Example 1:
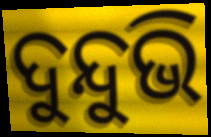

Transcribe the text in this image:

ଦୁନ୍ଦୁଭି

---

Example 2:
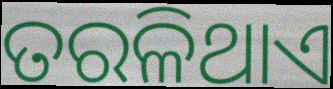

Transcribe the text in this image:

ତରଳିଥାଏ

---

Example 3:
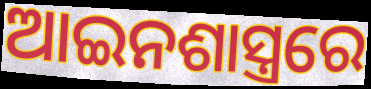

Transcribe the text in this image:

ଆଇନଶାସ୍ତ୍ରରେ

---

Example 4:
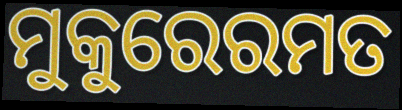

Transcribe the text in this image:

ମୁକୁରେରମତ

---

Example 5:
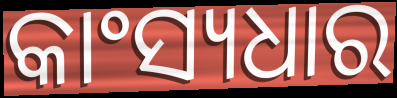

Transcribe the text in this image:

କାଂସ୍ୟଧାର